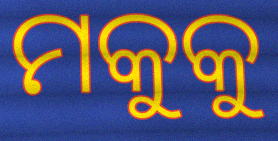
ମକୁକୁ